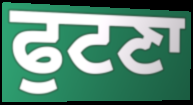
ਫੁਟਣਾ